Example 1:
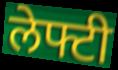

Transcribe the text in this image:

लेफ्टी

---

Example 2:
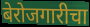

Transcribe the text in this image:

बेरोजगारीचा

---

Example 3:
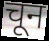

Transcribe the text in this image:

चून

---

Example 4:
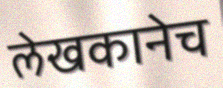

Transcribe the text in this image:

लेखकानेच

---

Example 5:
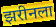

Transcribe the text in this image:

झरीनला